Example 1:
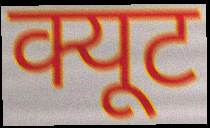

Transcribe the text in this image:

क्यूट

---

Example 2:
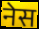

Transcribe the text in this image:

नेस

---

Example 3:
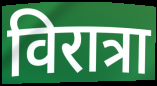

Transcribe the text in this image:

विरात्रा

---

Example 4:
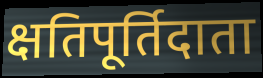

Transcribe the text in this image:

क्षतिपूर्तिदाता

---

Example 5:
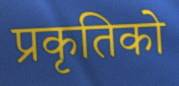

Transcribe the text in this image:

प्रकृतिको